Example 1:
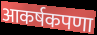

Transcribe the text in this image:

आकर्षकपणा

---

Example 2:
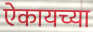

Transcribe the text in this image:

ऐकायच्या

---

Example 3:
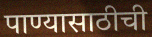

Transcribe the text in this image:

पाण्यासाठीची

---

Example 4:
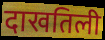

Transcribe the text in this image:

दाखतिली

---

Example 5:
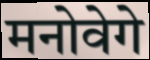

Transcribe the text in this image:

मनोवेगे